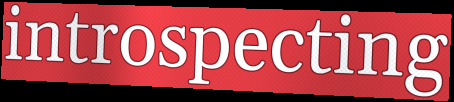
introspecting